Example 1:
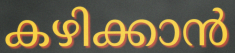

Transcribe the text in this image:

കഴിക്കാൻ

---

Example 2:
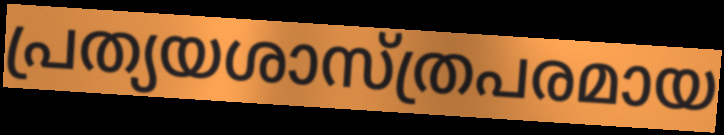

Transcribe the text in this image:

പ്രത്യയശാസ്ത്രപരമായ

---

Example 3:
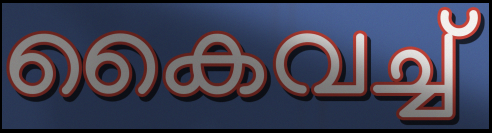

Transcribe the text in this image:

കൈവച്ച്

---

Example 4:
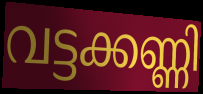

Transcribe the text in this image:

വട്ടക്കണ്ണി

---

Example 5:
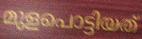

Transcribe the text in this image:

മുളപൊട്ടിയത്